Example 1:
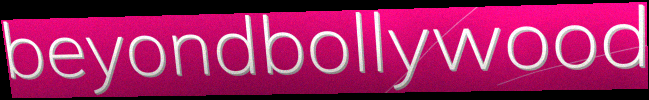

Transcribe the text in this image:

beyondbollywood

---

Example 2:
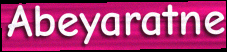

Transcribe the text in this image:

Abeyaratne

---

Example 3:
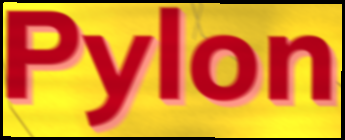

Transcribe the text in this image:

Pylon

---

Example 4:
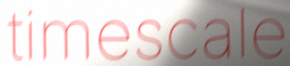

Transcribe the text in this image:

timescale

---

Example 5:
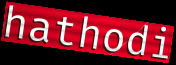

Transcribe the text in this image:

hathodi